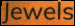
Jewels